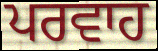
ਪਰਵਾਹ